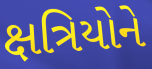
ક્ષત્રિયોને